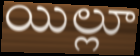
యిల్లూ